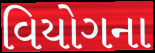
વિયોગના